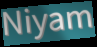
Niyam